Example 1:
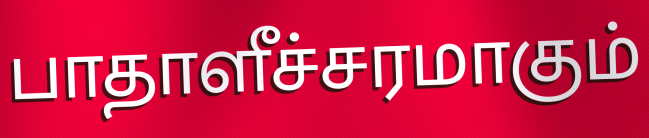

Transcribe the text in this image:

பாதாளீச்சரமாகும்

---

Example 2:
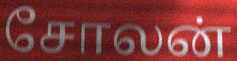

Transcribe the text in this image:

சோலன்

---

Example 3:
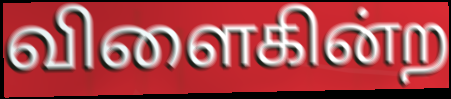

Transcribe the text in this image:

விளைகின்ற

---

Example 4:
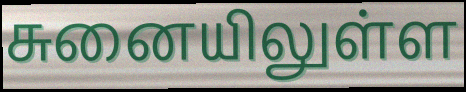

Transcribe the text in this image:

சுனையிலுள்ள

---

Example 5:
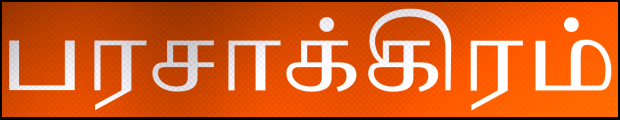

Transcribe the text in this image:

பரசாக்கிரம்